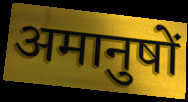
अमानुषों